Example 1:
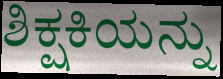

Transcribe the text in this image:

ಶಿಕ್ಷಕಿಯನ್ನು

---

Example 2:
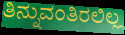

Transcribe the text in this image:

ತಿನ್ನುವಂತಿರಲಿಲ್ಲ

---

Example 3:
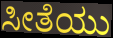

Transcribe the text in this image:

ಸೀತೆಯು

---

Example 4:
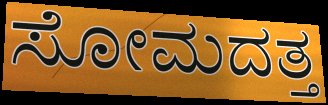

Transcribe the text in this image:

ಸೋಮದತ್ತ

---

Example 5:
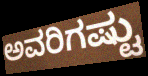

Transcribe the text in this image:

ಅವರಿಗಷ್ಟು